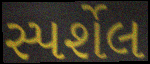
સ્પર્શેલ